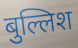
बुल्लिश